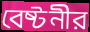
বেষ্টনীর